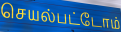
செயல்பட்டோம்